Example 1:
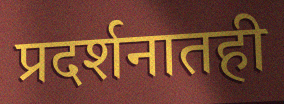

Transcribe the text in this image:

प्रदर्शनातही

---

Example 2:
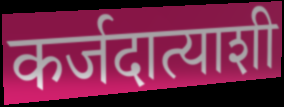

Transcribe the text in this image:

कर्जदात्याशी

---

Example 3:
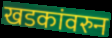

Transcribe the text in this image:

खडकांवरुन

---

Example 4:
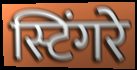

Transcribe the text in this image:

स्टिंगरे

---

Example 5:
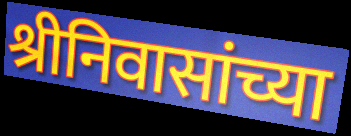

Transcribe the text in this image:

श्रीनिवासांच्या